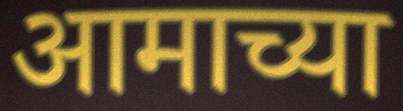
आमाच्या